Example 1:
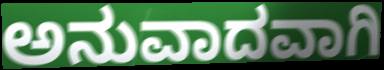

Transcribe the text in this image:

ಅನುವಾದವಾಗಿ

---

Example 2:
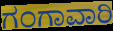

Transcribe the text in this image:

ಗಂಗಾವಾರಿ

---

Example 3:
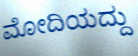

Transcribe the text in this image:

ಮೋದಿಯದ್ದು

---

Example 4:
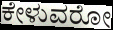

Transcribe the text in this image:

ಕೇಳುವರೋ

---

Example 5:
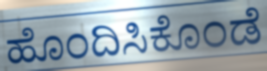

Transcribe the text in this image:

ಹೊಂದಿಸಿಕೊಂಡೆ